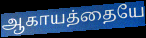
ஆகாயத்தையே